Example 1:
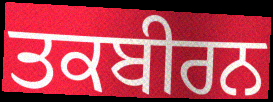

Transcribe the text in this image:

ਤਕਬੀਰਨ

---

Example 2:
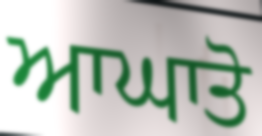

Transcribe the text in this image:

ਆਘਾਤੋ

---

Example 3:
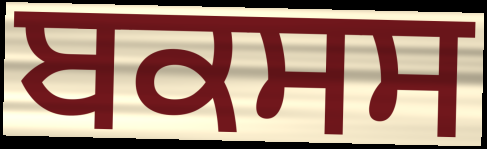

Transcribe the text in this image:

ਬਕਸਸ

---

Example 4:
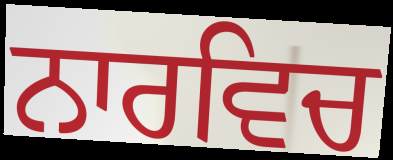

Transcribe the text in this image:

ਨਾਰਵਿਚ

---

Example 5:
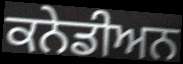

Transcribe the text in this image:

ਕਨੇਡੀਅਨ